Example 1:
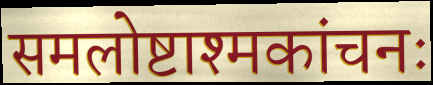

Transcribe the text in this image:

समलोष्टाश्मकांचनः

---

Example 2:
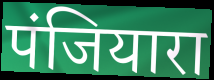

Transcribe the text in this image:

पंजियारा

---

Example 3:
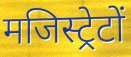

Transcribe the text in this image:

मजिस्ट्रेटों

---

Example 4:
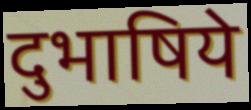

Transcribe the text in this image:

दुभाषिये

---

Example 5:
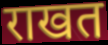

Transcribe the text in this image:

राखत